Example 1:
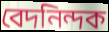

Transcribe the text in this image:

বেদনিন্দক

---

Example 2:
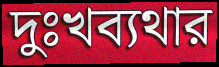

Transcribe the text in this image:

দুঃখব্যথার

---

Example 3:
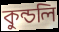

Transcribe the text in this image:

কুন্ডলি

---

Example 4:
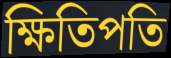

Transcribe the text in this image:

ক্ষিতিপতি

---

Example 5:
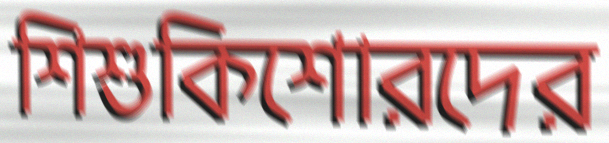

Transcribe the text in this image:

শিশুকিশোরদের